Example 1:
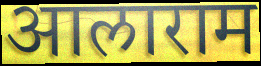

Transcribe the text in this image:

आलाराम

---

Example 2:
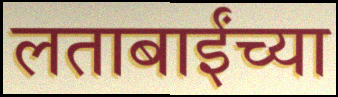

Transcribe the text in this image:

लताबाईंच्या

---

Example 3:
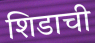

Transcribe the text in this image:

शिडाची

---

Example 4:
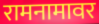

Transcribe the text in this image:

रामनामावर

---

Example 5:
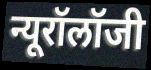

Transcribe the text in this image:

न्यूरॉलॉजी